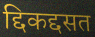
द्दिकद्दसत